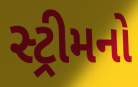
સ્ટ્રીમનો